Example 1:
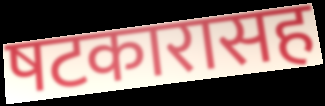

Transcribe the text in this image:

षटकारासह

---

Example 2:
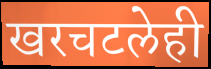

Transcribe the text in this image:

खरचटलेही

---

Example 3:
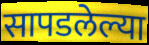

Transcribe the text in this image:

सापडलेल्या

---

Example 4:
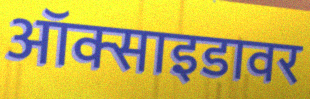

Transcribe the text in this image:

ऑक्साइडावर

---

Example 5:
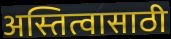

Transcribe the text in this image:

अस्तित्वासाठी